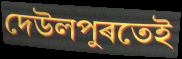
দেউলপুৰতেই